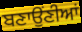
ਬਣਾਉਂਣੀਆਂ